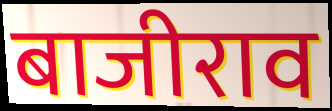
बाजीराव